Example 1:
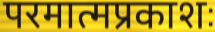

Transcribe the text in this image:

परमात्मप्रकाशः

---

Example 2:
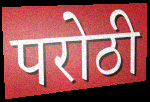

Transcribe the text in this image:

परोठी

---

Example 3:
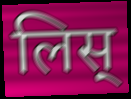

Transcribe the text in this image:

लिस्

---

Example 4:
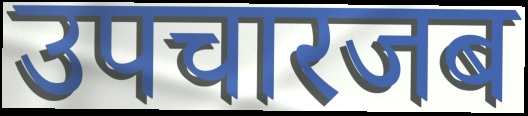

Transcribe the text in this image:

उपचारजब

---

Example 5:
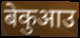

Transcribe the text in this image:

बेकुआउ